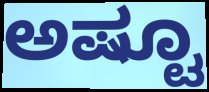
ಅಷ್ಟೂ